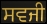
ਸਵਜੀ